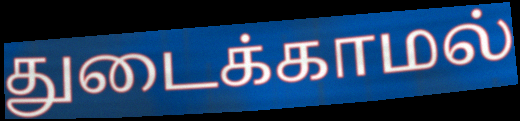
துடைக்காமல்